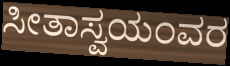
ಸೀತಾಸ್ವಯಂವರ